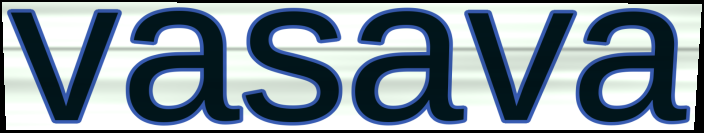
vasava